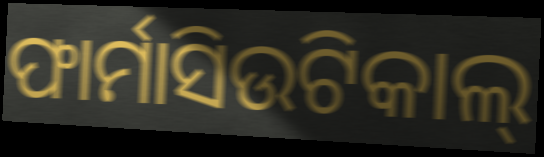
ଫାର୍ମାସିଉଟିକାଲ୍